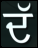
ਦੱ